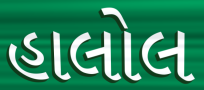
હાલોલ